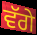
ਵੱਗੇ